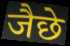
जैछे